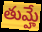
తుమ్హే